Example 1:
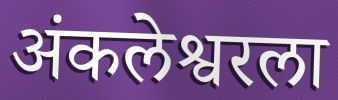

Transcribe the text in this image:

अंकलेश्वरला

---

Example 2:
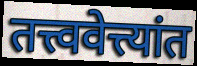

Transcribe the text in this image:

तत्त्ववेत्त्यांत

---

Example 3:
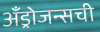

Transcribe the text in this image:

अँड्रोजन्सची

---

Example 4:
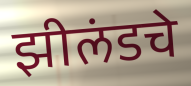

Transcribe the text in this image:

झीलंडचे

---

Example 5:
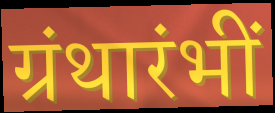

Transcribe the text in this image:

ग्रंथारंभीं